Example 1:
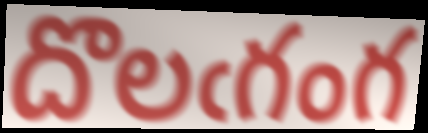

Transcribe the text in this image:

దొలఁగంగ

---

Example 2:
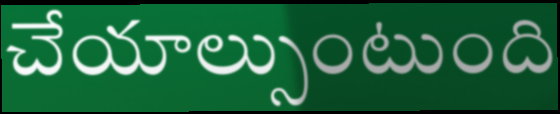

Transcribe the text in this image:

చేయాల్సుంటుంది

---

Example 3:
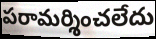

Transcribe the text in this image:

పరామర్శించలేదు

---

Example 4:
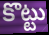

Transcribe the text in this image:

కొట్టు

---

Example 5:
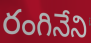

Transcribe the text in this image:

రంగినేని